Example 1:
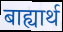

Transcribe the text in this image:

बाह्यार्थ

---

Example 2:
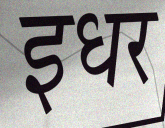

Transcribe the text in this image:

इधर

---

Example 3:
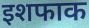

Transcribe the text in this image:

इशफाक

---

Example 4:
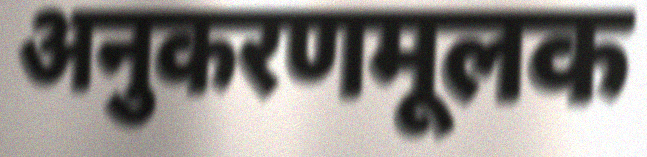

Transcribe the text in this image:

अनुकरणमूलक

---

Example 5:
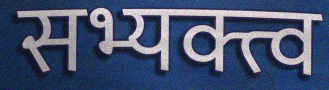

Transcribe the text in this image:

सभ्यक्त्व